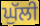
ਘੁੱਲੀ